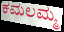
ಕಮಲಮ್ಮ